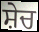
ਸ਼ੇਚ